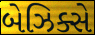
બેઝિક્સે